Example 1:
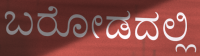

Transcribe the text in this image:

ಬರೋಡದಲ್ಲಿ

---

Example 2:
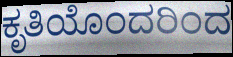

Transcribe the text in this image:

ಕೃತಿಯೊಂದರಿಂದ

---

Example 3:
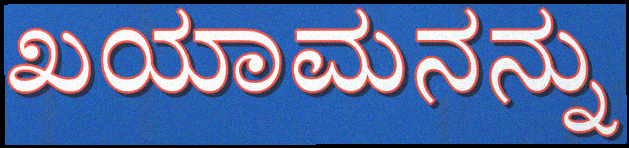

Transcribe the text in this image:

ಖಯಾಮನನ್ನು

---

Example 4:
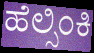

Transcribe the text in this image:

ಹೆಲ್ಸಿಂಕಿ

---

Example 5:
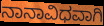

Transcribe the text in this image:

ನಾನಾವಿಧವಾಗಿ